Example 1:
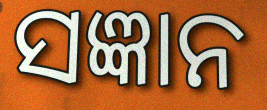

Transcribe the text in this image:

ସଜ୍ଞାନ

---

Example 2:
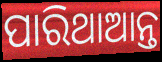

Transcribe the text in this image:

ପାରିଥାଆନ୍ତ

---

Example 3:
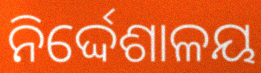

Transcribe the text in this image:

ନିର୍ଦ୍ଦେଶାଳୟ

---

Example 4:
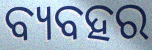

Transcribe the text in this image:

ବ୍ଯବହର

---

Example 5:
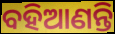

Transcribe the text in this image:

ବହିଆଣନ୍ତି